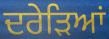
ਦਰੇੜਿਆਂ